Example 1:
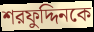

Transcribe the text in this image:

শরফুদ্দিনকে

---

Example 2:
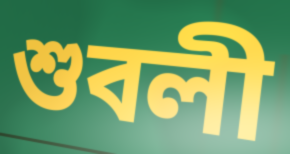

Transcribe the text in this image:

শুবলী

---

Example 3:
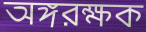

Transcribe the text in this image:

অঙ্গরক্ষক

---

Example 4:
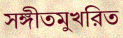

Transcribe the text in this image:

সঙ্গীতমুখরিত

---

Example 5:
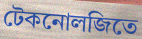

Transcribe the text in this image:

টেকনোলজিতে